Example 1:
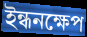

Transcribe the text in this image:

ইন্ধনক্ষেপ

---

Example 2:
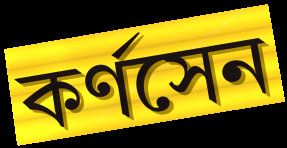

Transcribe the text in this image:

কর্ণসেন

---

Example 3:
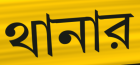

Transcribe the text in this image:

থানার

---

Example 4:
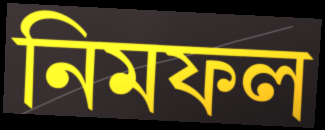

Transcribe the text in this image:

নিমফল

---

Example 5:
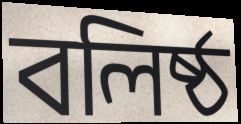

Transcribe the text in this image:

বলিষ্ঠ